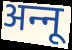
अन्नू